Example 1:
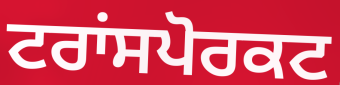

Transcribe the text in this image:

ਟਰਾਂਸਪੋਰਕਟ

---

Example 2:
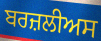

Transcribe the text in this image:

ਬਰਜ਼ਲੀਅਸ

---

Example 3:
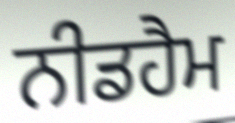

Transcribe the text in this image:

ਨੀਡਹੈਮ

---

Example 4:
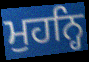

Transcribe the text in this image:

ਮੁਹਨ੍ਹ੍ਹਿ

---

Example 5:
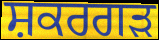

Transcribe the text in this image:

ਸ਼ਕਰਗੜ